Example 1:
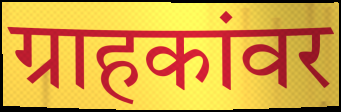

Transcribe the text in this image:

ग्राहकांवर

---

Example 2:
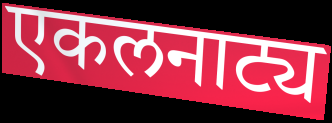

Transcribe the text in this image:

एकलनाट्य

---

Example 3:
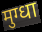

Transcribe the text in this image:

मुग्धा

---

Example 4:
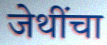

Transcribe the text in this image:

जेथींचा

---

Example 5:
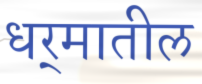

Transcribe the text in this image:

धर्मातील